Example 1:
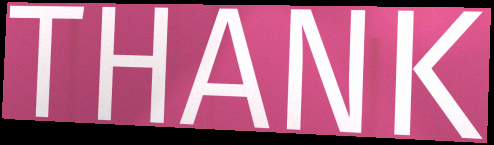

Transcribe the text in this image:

THANK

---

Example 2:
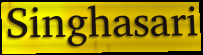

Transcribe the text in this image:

Singhasari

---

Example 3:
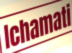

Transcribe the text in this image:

Ichamati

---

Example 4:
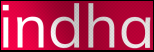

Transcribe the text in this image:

indha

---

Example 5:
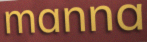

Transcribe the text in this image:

manna